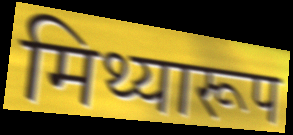
मिथ्यारूप